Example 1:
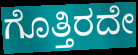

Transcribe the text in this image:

ಗೊತ್ತಿರದೇ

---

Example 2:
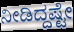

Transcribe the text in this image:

ನೀಡಿದ್ದಷ್ಟೇ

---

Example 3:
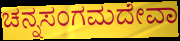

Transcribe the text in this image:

ಚನ್ನಸಂಗಮದೇವಾ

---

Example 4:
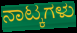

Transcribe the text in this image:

ನಾಟ್ಕಗಳು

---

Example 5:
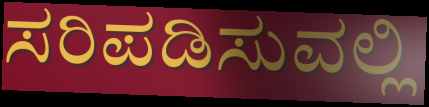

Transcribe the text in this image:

ಸರಿಪಡಿಸುವಲ್ಲಿ